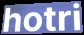
hotri